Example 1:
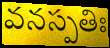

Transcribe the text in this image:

వనస్పతిః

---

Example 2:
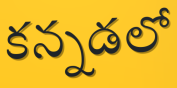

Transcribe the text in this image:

కన్నడలో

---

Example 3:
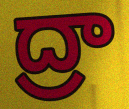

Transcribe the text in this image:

ద్రా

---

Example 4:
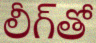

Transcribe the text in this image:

లీగ్‌తో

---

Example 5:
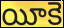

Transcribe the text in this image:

యీకె